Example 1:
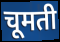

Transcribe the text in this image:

चूमती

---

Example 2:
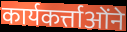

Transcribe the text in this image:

कार्यकर्त्ताओंने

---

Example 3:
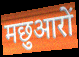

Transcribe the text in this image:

मछुआरों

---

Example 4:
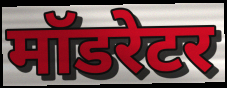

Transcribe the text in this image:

मॉडरेटर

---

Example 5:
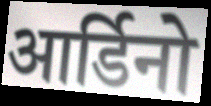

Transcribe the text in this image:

आर्डिनो